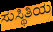
ಸುಸ್ಥಿತಿಯ